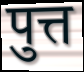
पुत्त